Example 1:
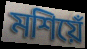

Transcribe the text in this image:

মশিয়েঁ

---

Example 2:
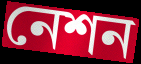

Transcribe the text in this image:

নেশন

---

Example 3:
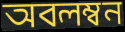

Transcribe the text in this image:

অবলম্বন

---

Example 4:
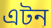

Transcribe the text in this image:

এটন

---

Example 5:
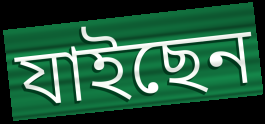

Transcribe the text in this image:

যাইছেন